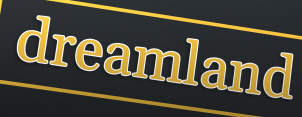
dreamland